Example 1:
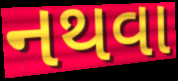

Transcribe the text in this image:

નથવા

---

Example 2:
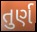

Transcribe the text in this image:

તુર્ણ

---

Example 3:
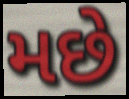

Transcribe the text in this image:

મછે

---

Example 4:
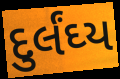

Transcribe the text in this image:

દુર્લંઘ્ય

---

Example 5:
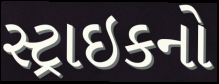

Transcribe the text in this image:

સ્ટ્રાઇકનો